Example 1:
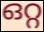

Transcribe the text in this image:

ഒറ്റ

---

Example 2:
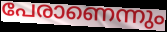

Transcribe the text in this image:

പേരാണെന്നും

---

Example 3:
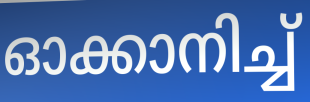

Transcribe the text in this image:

ഓക്കാനിച്ച്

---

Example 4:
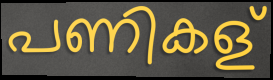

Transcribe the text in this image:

പണികള്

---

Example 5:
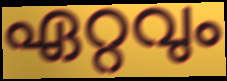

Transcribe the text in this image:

ഏറ്റവും